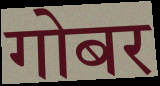
गोबर